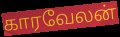
காரவேலன்